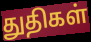
துதிகள்